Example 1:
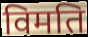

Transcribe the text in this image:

विमति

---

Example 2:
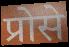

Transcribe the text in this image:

प्रोसे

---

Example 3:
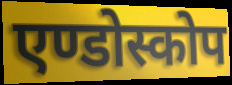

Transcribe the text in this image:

एण्डोस्कोप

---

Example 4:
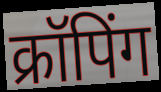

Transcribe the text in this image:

क्रॉपिंग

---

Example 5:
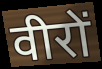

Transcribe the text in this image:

वीरों